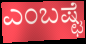
ಎಂಬಷ್ಟೆ